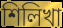
শিলিখা